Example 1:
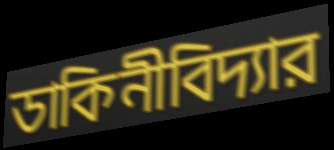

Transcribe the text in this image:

ডাকিনীবিদ্যার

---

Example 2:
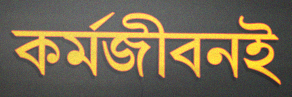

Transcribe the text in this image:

কর্মজীবনই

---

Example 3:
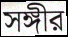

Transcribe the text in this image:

সঙ্গীর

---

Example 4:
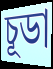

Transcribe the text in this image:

চূডা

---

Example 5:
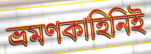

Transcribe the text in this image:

ভ্রমণকাহিনিই